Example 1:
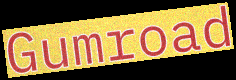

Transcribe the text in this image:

Gumroad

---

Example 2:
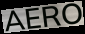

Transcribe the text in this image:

AERO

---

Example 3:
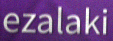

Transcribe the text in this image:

ezalaki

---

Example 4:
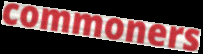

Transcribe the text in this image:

commoners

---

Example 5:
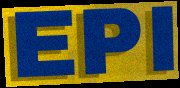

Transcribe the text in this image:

EPI